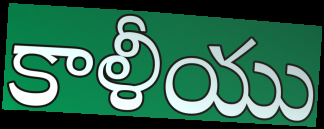
కాళీయు